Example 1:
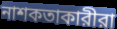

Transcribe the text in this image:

নাশকতাকারীরা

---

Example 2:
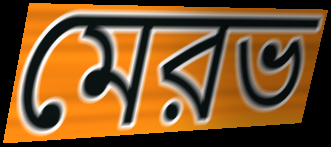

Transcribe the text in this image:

মেরভ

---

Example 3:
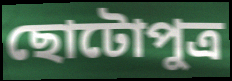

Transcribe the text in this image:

ছোটোপুত্র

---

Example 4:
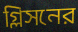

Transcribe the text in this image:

গ্লিসনের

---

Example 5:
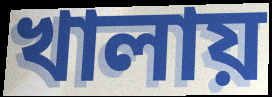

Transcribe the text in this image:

খালায়